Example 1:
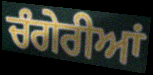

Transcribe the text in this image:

ਚੰਗੇਰੀਆਂ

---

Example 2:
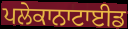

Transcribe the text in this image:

ਪਲੇਕਾਨਾਟਾਈਡ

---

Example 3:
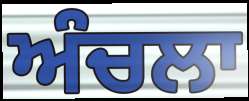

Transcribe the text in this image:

ਅੰਚਲਾ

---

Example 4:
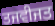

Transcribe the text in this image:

ਤਜਵੀਜਤ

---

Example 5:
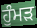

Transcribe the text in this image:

ਹੁੰਮੜ